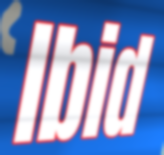
Ibid